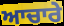
ਆਚਾਰੇ